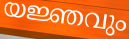
യജ്ഞവും